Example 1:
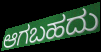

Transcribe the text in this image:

ಆಗಬಹದು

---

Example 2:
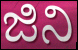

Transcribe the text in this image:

ಜಿನಿ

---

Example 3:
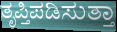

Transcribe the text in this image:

ತೃಪ್ತಿಪಡಿಸುತ್ತಾ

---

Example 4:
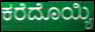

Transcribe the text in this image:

ಕರೆದೊಯ್ಯಿ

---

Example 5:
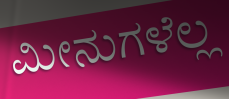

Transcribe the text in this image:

ಮೀನುಗಳೆಲ್ಲ